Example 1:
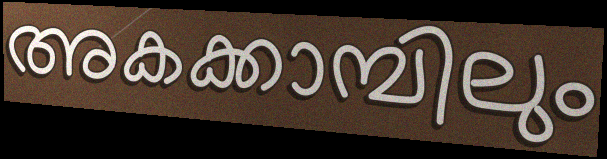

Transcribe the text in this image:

അകക്കാമ്പിലും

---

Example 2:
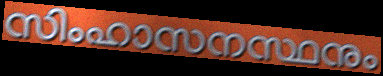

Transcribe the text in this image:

സിംഹാസനസ്ഥനും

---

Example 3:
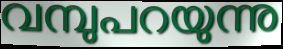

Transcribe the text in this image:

വമ്പുപറയുന്നു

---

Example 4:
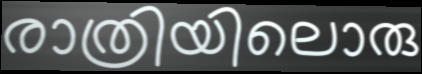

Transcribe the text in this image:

രാത്രിയിലൊരു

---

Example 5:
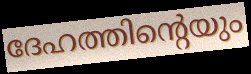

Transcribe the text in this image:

ദേഹത്തിന്റെയും